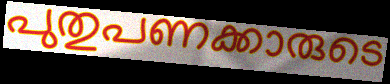
പുതുപണക്കാരുടെ